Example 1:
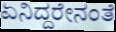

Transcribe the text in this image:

ಏನಿದ್ದರೇನಂತೆ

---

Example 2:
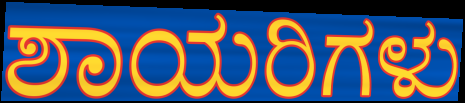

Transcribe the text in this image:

ಶಾಯರಿಗಳು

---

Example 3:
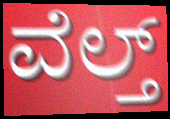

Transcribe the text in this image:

ವೆಲ್ತ್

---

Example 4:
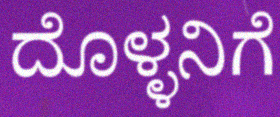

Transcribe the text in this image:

ದೊಳ್ಳನಿಗೆ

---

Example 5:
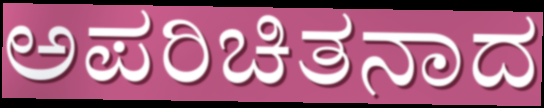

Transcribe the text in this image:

ಅಪರಿಚಿತನಾದ